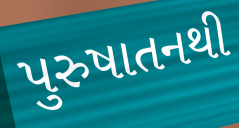
પુરુષાતનથી